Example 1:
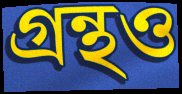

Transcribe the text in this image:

গ্রন্থও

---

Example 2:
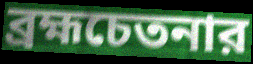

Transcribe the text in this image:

ব্রহ্মচেতনার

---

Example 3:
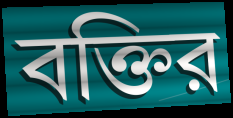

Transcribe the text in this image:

বক্তির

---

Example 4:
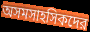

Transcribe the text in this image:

অসমসাহসিকদের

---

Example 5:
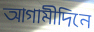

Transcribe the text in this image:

আগামীদিনে